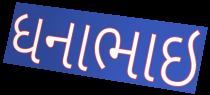
ધનાભાઇ